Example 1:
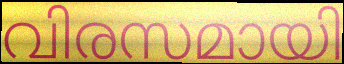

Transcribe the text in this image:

വിരസമായി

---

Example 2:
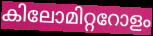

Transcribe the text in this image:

കിലോമിറ്ററോളം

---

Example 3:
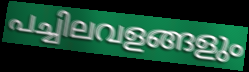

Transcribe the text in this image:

പച്ചിലവളങ്ങളും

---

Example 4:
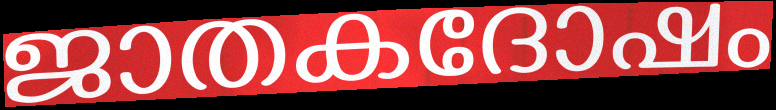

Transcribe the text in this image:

ജാതകദോഷം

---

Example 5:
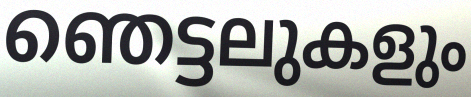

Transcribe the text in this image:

ഞെട്ടലുകളും